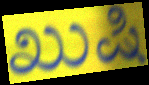
ಖುಷಿ